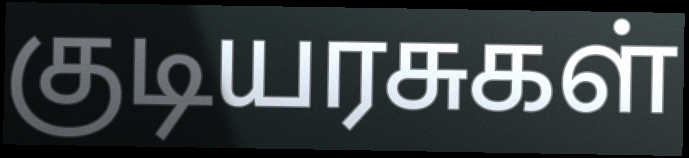
குடியரசுகள்